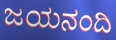
ಜಯನಂದಿ